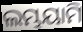
ଲମ୍ଭୟାମି